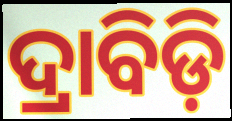
ଦ୍ରାବିଡ଼ି